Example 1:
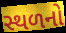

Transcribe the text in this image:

સ્થળનો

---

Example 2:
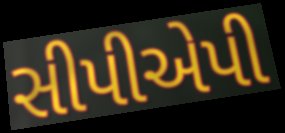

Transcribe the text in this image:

સીપીએપી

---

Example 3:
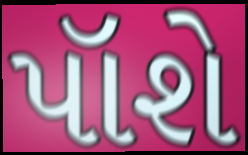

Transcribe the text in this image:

પૉશે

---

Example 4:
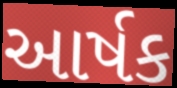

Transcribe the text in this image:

આર્ષક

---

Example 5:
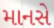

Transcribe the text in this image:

માનસે